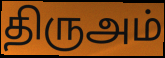
திருஅம்